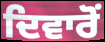
ਦਿਵਾਰੋਂ